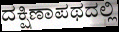
ದಕ್ಷಿಣಾಪಥದಲ್ಲಿ